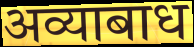
अव्याबाध